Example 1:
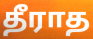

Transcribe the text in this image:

தீராத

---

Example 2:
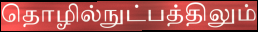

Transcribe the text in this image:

தொழில்நுட்பத்திலும்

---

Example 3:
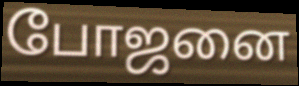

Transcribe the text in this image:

போஜனை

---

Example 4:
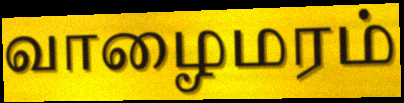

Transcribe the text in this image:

வாழைமரம்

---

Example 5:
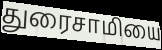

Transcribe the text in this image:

துரைசாமியை